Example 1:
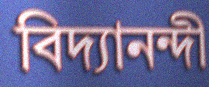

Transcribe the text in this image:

বিদ্যানন্দী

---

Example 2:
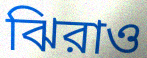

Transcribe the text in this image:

ঝিরাও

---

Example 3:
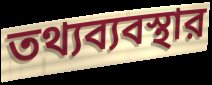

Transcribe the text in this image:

তথ্যব্যবস্থার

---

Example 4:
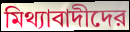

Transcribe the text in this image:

মিথ্যাবাদীদের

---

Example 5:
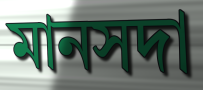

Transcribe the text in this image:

মানসদা